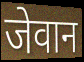
जेवान